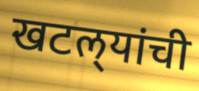
खटल्यांची